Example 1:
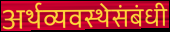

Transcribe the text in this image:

अर्थव्यवस्थेसंबंधी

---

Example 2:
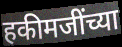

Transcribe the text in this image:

हकीमजींच्या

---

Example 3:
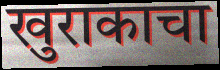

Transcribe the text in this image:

खुराकाचा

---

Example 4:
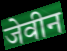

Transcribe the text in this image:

जेवीन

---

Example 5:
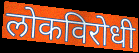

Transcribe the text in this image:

लोकविरोधी